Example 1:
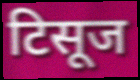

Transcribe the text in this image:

टिसूज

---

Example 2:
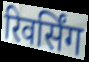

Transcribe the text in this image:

रिवर्सिंग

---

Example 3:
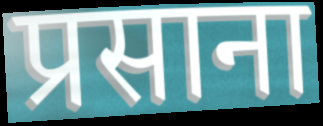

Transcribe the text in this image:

प्रसाना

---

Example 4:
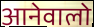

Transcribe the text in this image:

आनेवालो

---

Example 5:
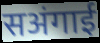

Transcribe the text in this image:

सअंगाई